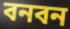
বনবন